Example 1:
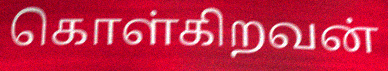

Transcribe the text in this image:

கொள்கிறவன்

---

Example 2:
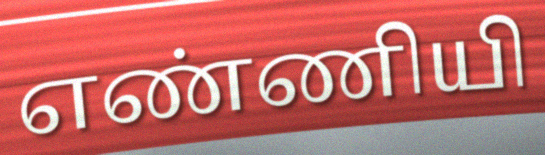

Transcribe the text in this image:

எண்ணியி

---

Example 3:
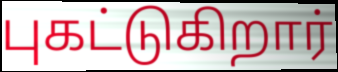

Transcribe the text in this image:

புகட்டுகிறார்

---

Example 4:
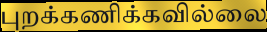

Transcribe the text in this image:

புறக்கணிக்கவில்லை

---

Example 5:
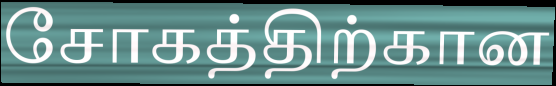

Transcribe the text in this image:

சோகத்திற்கான